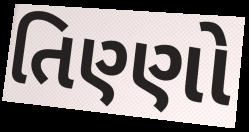
તિણ્ણો